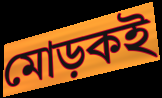
মোড়কই